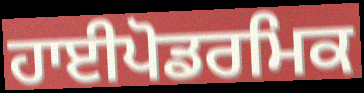
ਹਾਈਪੋਡਰਮਿਕ